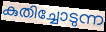
കുതിച്ചോടുന്ന